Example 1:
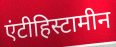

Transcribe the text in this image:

एंटीहिस्टामीन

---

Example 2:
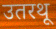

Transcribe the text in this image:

उतरथू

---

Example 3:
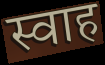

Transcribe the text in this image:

स्वाह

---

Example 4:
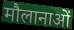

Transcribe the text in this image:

मौलानाओं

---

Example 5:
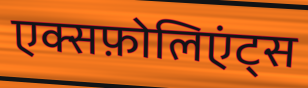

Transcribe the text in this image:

एक्सफ़ोलिएंट्स